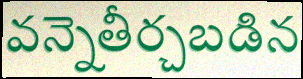
వన్నెతీర్చబడిన